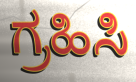
ಗ್ರಹಿಸಿ